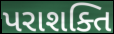
પરાશક્તિ